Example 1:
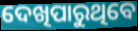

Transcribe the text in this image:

ଦେଖିପାରୁଥିବେ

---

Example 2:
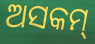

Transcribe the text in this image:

ଅସକମ୍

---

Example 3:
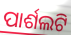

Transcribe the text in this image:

ପାର୍ଶଲଟି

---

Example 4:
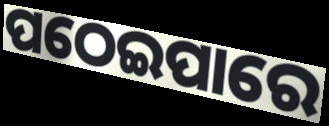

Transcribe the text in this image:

ପଠେଇପାରେ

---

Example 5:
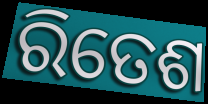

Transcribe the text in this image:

ରିତେଶ